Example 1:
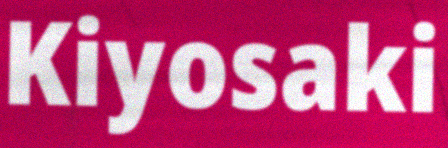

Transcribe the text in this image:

Kiyosaki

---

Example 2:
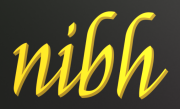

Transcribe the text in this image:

nibh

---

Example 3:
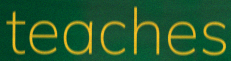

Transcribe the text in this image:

teaches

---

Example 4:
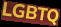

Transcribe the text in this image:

LGBTQ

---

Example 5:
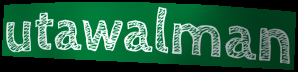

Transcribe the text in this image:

utawalman